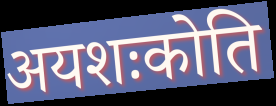
अयशःकोति